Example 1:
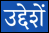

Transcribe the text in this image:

उद्देशें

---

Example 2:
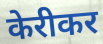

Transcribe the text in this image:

केरीकर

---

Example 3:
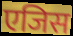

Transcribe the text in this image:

एजिस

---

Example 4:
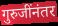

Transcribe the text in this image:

गुरुजींनंतर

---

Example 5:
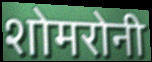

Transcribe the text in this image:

शोमरोनी